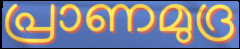
പ്രാണമുദ്ര